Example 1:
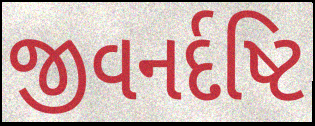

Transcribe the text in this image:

જીવનર્દષ્ટિ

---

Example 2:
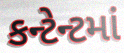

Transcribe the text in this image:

કન્ટેન્ટમાં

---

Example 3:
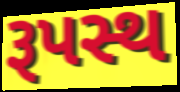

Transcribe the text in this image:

રૂપસ્થ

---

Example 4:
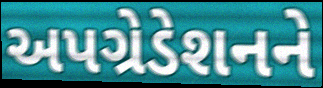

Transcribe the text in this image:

અપગ્રેડેશનને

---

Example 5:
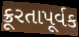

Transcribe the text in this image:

ક્રૂરતાપૂર્વક